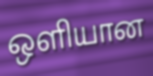
ஒளியான